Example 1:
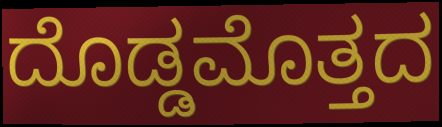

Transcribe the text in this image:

ದೊಡ್ಡಮೊತ್ತದ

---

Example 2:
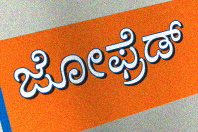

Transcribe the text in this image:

ಜೋಫ್ರೆಡ್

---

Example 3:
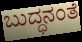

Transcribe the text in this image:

ಬುದ್ಧನಂತೆ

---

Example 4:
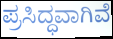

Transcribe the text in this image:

ಪ್ರಸಿದ್ಧವಾಗಿವೆ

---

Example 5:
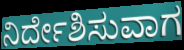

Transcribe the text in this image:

ನಿರ್ದೇಶಿಸುವಾಗ